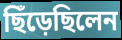
ছিঁড়েছিলেন